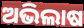
ଅଭିଲାଷ